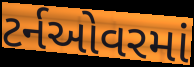
ટર્નઓવરમાં